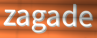
zagade